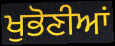
ਖੁਭੋਣੀਆਂ